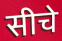
सीचे